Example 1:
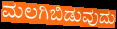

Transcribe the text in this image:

ಮಲಗಿಬಿಡುವುದು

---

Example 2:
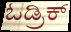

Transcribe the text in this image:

ಓಡ್ರಿಕ್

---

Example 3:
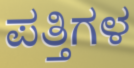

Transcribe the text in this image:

ಪತ್ತಿಗಳ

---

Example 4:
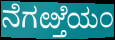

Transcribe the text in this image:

ನೆಗೞ್ತೆಯಂ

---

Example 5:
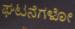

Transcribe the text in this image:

ಘಟನೆಗಳೋ